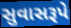
સુવાસરૂપે